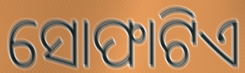
ସୋଫାଟିଏ